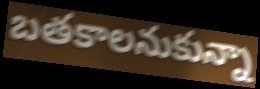
బతకాలనుకున్నా